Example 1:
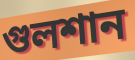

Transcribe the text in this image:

গুলশান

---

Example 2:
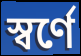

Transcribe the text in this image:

স্বর্ণে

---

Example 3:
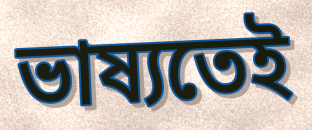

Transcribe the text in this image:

ভাষ্যতেই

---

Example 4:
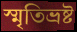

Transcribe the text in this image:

স্মৃতিভ্রষ্ট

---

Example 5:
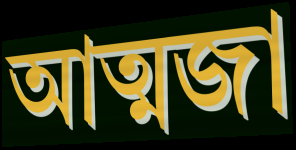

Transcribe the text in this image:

আত্মজা